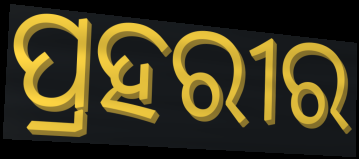
ପ୍ରହରୀର